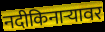
नदीकिनाऱ्यावर